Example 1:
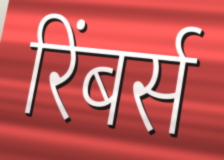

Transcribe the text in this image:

रिंबर्स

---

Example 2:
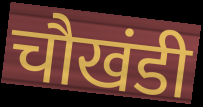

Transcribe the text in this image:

चौखंडी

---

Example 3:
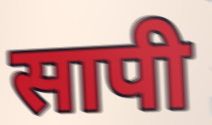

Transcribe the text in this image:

सापी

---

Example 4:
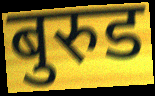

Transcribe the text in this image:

बुरुड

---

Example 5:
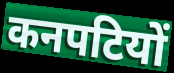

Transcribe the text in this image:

कनपटियों